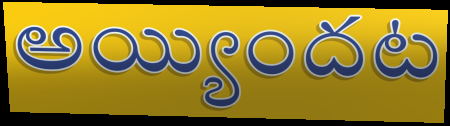
అయ్యిందట